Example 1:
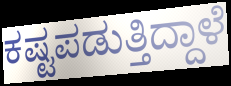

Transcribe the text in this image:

ಕಷ್ಟಪಡುತ್ತಿದ್ದಾಳೆ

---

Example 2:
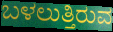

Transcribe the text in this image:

ಬಳಲುತ್ತಿರುವ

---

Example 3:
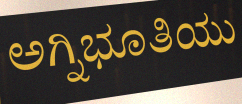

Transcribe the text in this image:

ಅಗ್ನಿಭೂತಿಯು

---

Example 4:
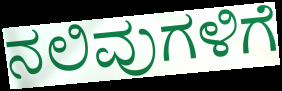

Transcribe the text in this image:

ನಲಿವುಗಳಿಗೆ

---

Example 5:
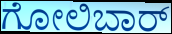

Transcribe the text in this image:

ಗೋಲಿಬಾರ್